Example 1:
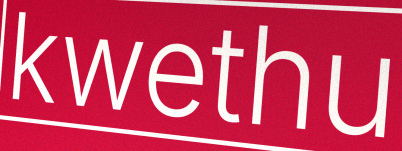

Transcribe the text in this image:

kwethu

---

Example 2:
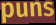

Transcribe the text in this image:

puns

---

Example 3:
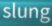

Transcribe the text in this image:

slung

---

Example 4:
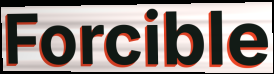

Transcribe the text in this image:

Forcible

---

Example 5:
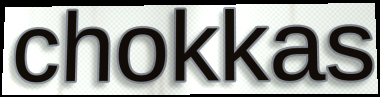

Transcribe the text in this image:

chokkas